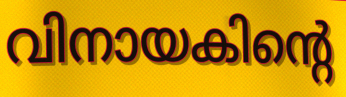
വിനായകിന്റെ